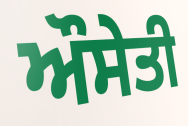
ਔਸੇਤੀ